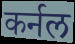
कर्नल